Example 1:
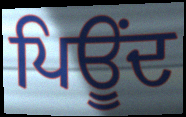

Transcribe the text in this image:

ਪਿਊਂਦ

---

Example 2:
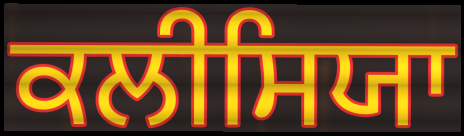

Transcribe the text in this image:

ਕਲੀਸਿਯਾ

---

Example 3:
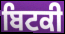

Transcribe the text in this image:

ਬਿਟਕੀ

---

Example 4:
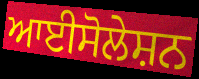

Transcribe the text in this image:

ਆਈਸੋਲੇਸ਼ਨ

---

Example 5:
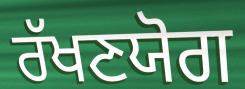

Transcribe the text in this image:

ਰੱਖਣਯੋਗ